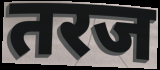
तरज